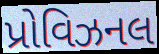
પ્રોવિઝનલ